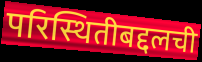
परिस्थितीबद्दलची